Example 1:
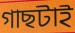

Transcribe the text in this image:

গাছটাই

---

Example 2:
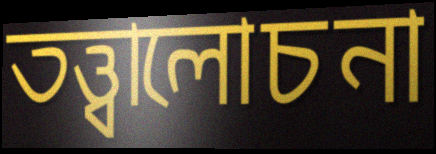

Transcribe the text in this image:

তত্ত্বালোচনা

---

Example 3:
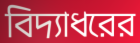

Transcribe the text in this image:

বিদ্যাধরের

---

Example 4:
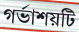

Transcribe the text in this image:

গর্ভাশয়টি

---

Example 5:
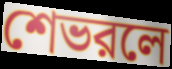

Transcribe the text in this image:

শেভরলে